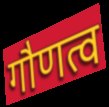
गौणत्व